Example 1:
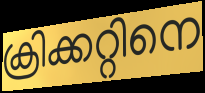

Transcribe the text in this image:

ക്രിക്കറ്റിനെ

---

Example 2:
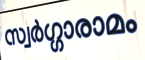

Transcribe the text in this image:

സ്വർഗ്ഗാരാമം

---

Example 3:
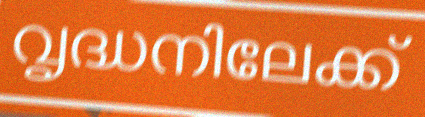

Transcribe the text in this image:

വൃദ്ധനിലേക്ക്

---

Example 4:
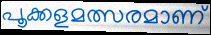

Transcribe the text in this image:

പൂക്കളമത്സരമാണ്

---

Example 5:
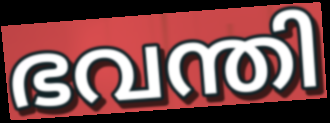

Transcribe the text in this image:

ഭവന്തി